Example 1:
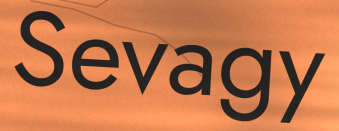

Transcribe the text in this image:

Sevagy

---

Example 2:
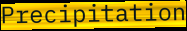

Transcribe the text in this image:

Precipitation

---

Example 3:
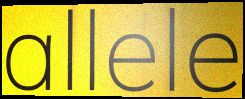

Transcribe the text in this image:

allele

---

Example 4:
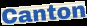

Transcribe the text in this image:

Canton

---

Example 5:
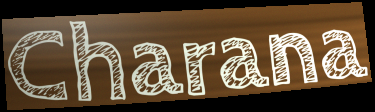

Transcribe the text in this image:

Charana